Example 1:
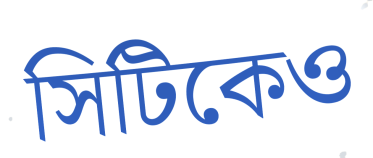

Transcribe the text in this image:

সিটিকেও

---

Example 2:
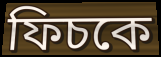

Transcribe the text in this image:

ফিচকে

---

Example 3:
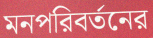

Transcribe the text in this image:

মনপরিবর্তনের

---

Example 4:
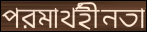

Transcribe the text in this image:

পরমার্থহীনতা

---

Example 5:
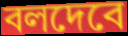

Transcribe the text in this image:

বলদেবে